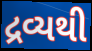
દ્રવ્યથી